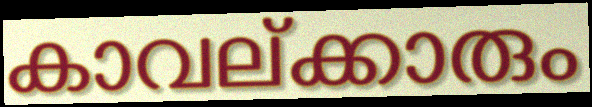
കാവല്ക്കാരും